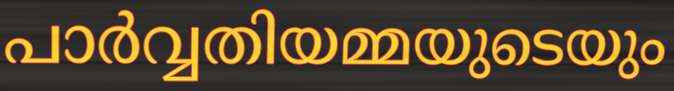
പാർവ്വതിയമ്മയുടെയും